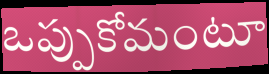
ఒప్పుకోమంటూ